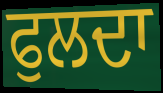
ਫੁਲਦਾ